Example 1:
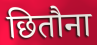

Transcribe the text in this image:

छितौना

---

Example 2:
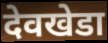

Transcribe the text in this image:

देवखेडा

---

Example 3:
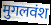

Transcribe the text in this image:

मुगलवंश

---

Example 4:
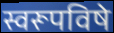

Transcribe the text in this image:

स्वरूपविषे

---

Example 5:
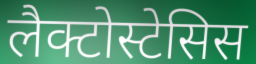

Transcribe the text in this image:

लैक्टोस्टेसिस